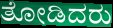
ತೋಡಿದರು